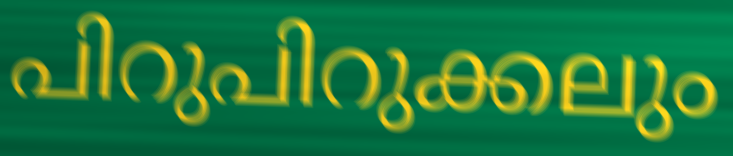
പിറുപിറുക്കലും